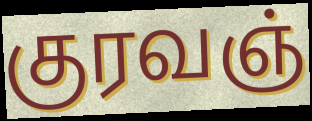
குரவஞ்